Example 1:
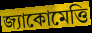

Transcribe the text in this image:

জ্যাকোমেত্তি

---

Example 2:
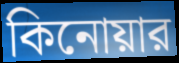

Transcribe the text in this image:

কিনোয়ার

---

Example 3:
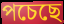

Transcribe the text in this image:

পচেছে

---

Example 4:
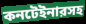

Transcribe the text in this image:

কনটেইনারসহ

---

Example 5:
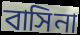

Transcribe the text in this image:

বাসিনা